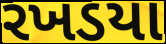
રખડયા